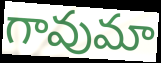
గావుమా